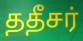
ததீசர்